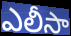
ఎలీసా